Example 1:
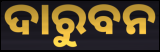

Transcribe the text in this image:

ଦାରୁବନ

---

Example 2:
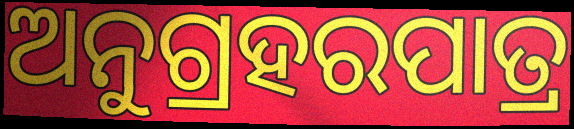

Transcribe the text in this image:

ଅନୁଗ୍ରହରପାତ୍ର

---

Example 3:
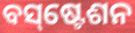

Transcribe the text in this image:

ବସ୍‌ଷ୍ଟେଶନ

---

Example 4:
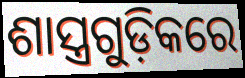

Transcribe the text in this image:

ଶାସ୍ତ୍ରଗୁଡ଼ିକରେ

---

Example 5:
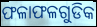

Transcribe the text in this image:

ଫଳାଫଳଗୁଡିକ